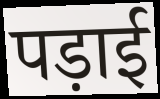
पड़ाई